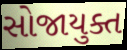
સોજાયુક્ત